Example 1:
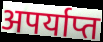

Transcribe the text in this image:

अपर्याप्त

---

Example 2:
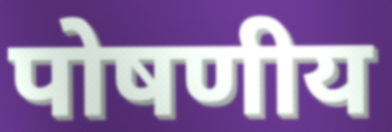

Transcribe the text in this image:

पोषणीय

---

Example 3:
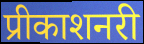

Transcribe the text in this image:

प्रीकाशनरी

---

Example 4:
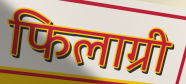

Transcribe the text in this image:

फिलाग्री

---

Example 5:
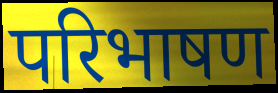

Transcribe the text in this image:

परिभाषण